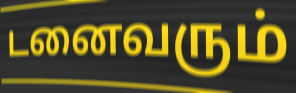
டனைவரும்